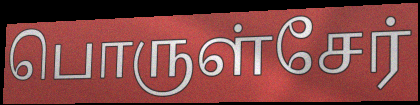
பொருள்சேர்